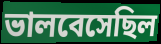
ভালবেসেছিল